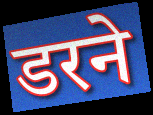
डरने